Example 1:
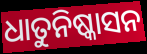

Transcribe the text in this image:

ଧାତୁନିଷ୍କାସନ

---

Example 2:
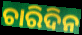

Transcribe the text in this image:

ଚାରିଦିନ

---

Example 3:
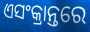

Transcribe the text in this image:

ଏସଂକ୍ରାନ୍ତରେ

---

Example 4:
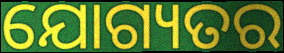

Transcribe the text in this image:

ଯୋଗ୍ୟତର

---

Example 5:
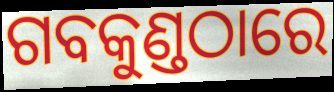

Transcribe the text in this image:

ଗବକୁଣ୍ଡଠାରେ